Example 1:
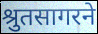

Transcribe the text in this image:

श्रुतसागरने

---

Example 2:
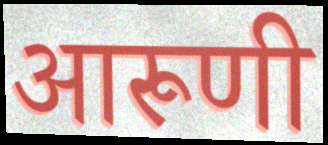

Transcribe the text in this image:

आरूणी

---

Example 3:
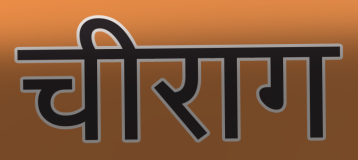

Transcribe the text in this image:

चीराग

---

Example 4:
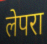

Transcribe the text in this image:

लेपरा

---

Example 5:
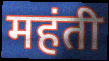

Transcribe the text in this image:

महंती